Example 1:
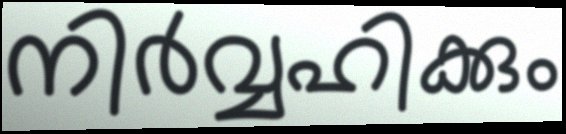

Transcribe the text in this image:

നിർവ്വഹിക്കും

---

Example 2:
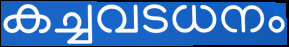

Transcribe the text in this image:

കച്ചവടധനം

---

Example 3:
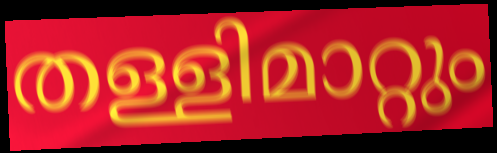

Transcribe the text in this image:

തള്ളിമാറ്റും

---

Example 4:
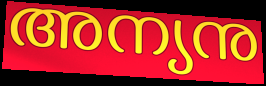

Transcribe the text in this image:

അന്യനു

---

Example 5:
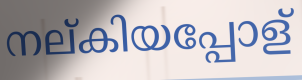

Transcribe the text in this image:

നല്കിയപ്പോള്